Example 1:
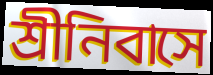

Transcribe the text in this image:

শ্ৰীনিবাসে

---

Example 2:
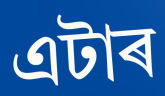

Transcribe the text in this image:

এটাৰ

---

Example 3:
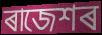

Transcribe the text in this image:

ৰাজেশৰ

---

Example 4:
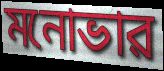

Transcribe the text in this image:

মনোভাৱ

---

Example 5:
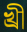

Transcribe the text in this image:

খ্ৰী